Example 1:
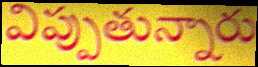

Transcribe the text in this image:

విప్పుతున్నారు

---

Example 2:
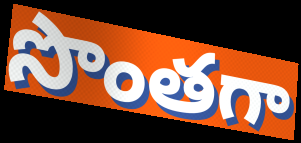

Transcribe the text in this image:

సొంతగా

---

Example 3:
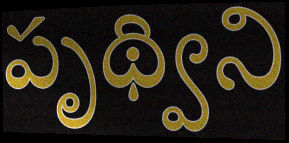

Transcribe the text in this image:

పృథ్విని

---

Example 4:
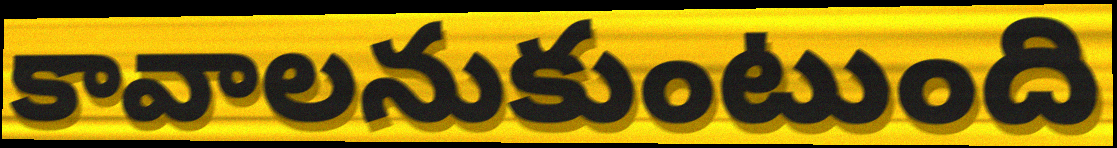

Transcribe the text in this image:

కావాలనుకుంటుంది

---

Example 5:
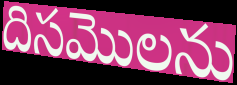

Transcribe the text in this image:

దిసమొలను